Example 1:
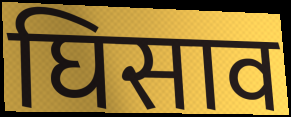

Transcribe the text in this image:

घिसाव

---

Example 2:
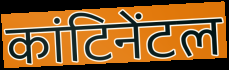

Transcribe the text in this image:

कांटिनेंटल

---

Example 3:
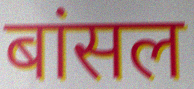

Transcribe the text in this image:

बांसल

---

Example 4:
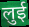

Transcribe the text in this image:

लुई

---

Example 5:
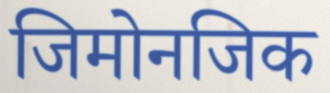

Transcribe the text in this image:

जिमोनजिक